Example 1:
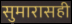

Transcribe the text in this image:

सुमारासही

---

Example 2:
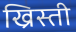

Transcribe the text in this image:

ख्रिस्ती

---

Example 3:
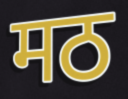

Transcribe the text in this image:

मठ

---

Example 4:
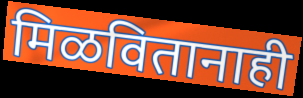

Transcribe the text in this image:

मिळवितानाही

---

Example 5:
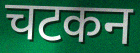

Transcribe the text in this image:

चटकन